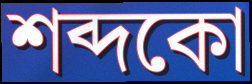
শব্দকো